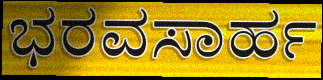
ಭರವಸಾರ್ಹ